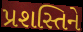
પ્રશસ્તિને